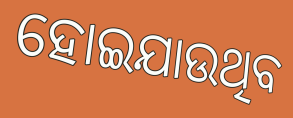
ହୋଇଯାଉଥିବ